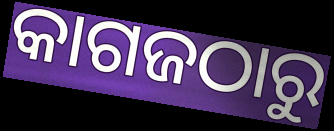
କାଗଜଠାରୁ